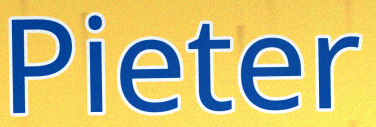
Pieter